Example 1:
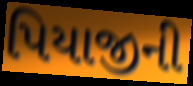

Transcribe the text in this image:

પિયાજીની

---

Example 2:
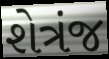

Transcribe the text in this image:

શેત્રંજ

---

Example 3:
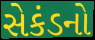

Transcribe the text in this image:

સેકંડનો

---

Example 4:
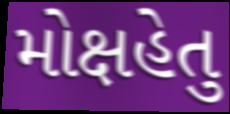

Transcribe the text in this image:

મોક્ષહેતુ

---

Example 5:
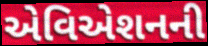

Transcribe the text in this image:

એવિએશનની